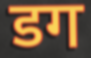
डग